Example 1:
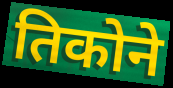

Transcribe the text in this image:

तिकोने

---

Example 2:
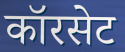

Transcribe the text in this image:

कॉरसेट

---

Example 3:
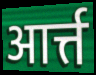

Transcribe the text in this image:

आर्त्त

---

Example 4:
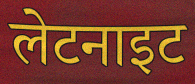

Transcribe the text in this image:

लेटनाइट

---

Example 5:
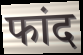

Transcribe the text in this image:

फांद